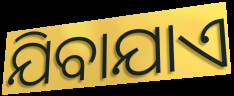
ଯିବାଯାଏ